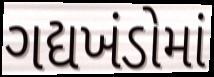
ગદ્યખંડોમાં